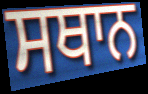
ਸਥਾਨ